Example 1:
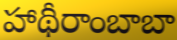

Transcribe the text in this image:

హాథీరాంబాబా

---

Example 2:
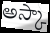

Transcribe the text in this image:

అస్కా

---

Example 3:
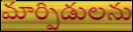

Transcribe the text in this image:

మార్పిడులను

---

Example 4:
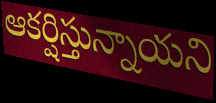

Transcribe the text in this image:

ఆకర్షిస్తున్నాయని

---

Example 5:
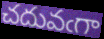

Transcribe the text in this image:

చదువఁగా